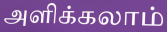
அளிக்கலாம்